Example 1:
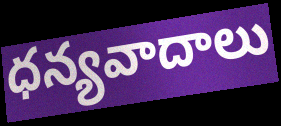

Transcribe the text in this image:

ధన్యవాదాలు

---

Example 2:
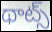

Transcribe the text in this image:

థాట్స్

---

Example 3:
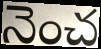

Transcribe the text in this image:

నెంచ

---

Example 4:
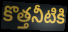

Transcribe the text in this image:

కొత్తనీటికి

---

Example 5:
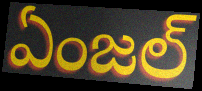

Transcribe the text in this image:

ఏంజల్